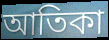
আতিকা